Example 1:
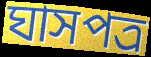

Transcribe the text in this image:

ঘাসপত্র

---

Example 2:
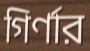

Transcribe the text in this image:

গির্ণার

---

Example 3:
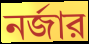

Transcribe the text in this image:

নর্জার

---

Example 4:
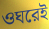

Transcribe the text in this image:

ওঘরেই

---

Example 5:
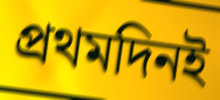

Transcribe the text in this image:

প্রথমদিনই